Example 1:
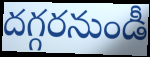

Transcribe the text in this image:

దగ్గరనుండీ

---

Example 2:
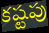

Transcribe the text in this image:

కష్టపు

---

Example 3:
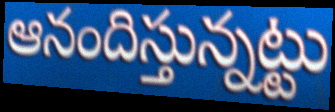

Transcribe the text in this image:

ఆనందిస్తున్నట్టు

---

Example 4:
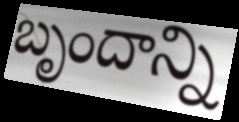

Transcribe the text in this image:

బృందాన్ని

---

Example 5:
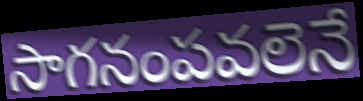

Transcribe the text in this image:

సాగనంపవలెనే